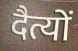
दैत्यों